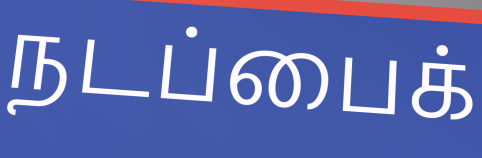
நடப்பைக்